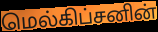
மெல்கிப்சனின்